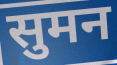
सुमन